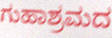
ಗುಹಾಶ್ರಮದ